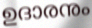
ഉദാരനും